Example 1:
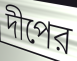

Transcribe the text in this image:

দীপের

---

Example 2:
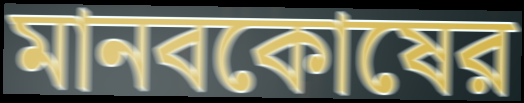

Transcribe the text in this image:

মানবকোষের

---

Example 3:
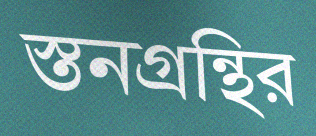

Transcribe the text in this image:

স্তনগ্রন্থির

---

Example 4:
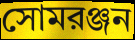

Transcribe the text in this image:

সোমরঞ্জন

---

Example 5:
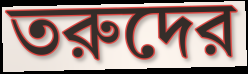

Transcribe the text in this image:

তরুদের